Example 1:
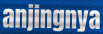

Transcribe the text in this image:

anjingnya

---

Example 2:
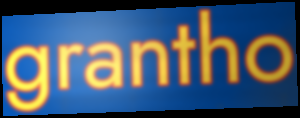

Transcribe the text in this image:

grantho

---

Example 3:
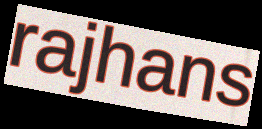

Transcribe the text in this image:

rajhans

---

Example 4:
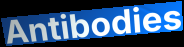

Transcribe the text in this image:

Antibodies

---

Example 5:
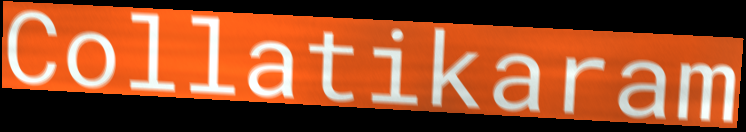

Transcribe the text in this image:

Collatikaram